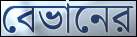
বেভানের